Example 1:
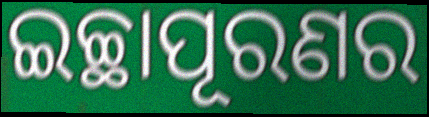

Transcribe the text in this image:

ଇଚ୍ଛାପୂରଣର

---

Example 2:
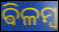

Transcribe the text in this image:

ଵିଳମ୍ବ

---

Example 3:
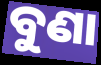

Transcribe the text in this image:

ବୁଣା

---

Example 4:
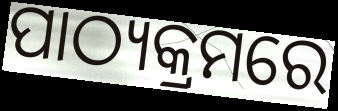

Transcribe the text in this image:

ପାଠ୍ୟକ୍ରମରେ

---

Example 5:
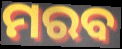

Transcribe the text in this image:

ମରବ